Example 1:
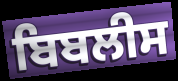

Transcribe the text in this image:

ਬਿਬਲੀਸ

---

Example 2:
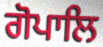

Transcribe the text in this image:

ਗੋਪਾਲਿ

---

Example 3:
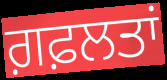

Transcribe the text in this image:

ਗ਼ਫ਼ਲਤਾਂ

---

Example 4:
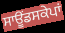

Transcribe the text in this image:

ਸਾਊਂਡਸਕੇਪਾਂ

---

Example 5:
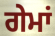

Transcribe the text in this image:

ਗੇਮਾਂ